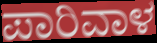
ಪಾರಿವಾಳ